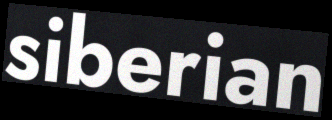
siberian